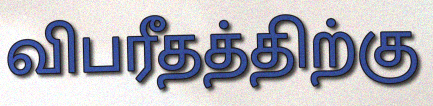
விபரீதத்திற்கு